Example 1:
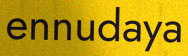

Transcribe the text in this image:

ennudaya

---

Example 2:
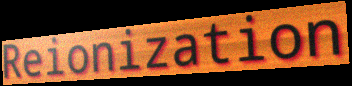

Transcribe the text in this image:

Reionization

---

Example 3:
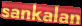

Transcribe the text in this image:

sankalan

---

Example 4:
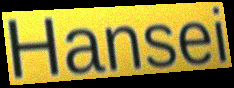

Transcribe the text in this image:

Hansei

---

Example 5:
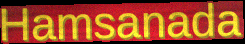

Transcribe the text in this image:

Hamsanada